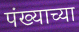
पंख्याच्या